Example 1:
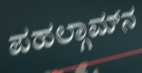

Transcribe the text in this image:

ಪಹಲ್ಗಾಮ್‌ನ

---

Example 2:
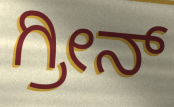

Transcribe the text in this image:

ಗ್ರೀನ್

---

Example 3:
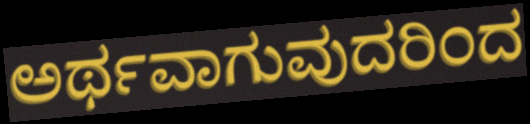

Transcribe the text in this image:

ಅರ್ಥವಾಗುವುದರಿಂದ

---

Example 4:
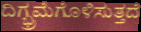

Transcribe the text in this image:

ದಿಗ್ಭ್ರಮೆಗೊಳಿಸುತ್ತದೆ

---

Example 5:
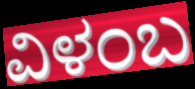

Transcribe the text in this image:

ವಿಳಂಬ